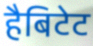
हैबिटेट